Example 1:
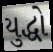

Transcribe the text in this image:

યુદ્ધો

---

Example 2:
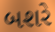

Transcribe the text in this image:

બશરે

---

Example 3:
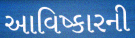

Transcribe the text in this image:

આવિષ્કારની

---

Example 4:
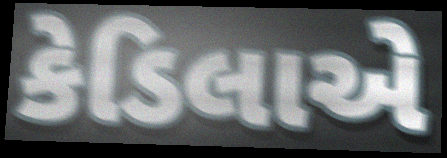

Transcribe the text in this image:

કેડિલાએ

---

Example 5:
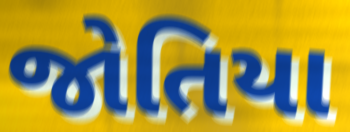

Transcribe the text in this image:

જોતિયા